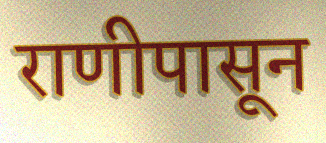
राणीपासून